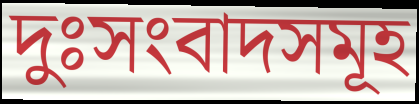
দুঃসংবাদসমূহ